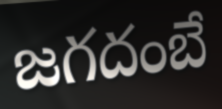
జగదంబే